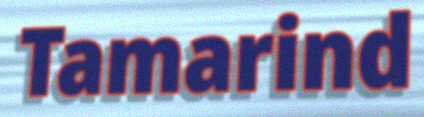
Tamarind